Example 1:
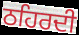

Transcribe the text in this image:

ਠਹਿਰਦੀ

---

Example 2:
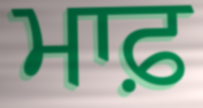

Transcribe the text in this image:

ਮਾਫ਼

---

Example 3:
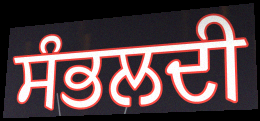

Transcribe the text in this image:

ਸੰਭਲਦੀ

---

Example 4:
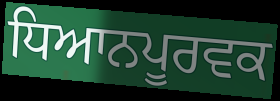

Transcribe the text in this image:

ਧਿਆਨਪੂਰਵਕ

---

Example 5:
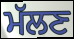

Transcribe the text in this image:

ਮੱਲਣ